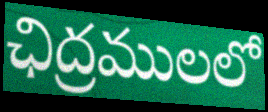
ఛిద్రములలో